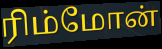
ரிம்மோன்